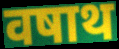
वषाथ